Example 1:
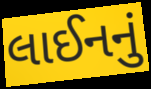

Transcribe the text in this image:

લાઈનનું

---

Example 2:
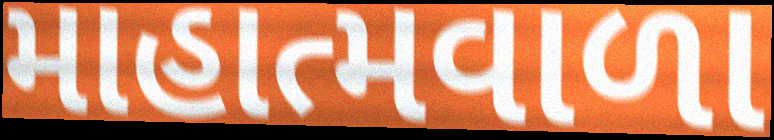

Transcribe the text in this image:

માહાત્મવાળા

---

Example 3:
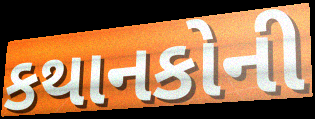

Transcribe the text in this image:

કથાનકોની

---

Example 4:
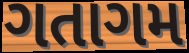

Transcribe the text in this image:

ગતાગમ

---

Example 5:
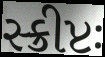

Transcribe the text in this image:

સ્ક્રીપ્ટઃ